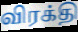
விரக்தி